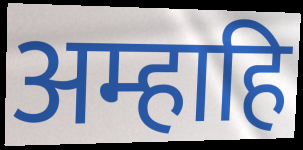
अम्हाहि